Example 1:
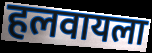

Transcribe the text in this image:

हलवायला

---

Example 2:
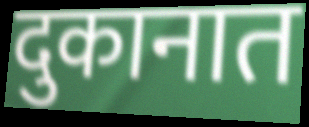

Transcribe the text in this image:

दुकानात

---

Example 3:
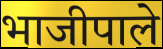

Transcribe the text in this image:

भाजीपाले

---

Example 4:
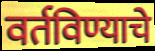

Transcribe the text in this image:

वर्तविण्याचे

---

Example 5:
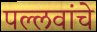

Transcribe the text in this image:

पल्लवांचे